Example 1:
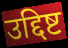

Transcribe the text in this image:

उद्दिष्ट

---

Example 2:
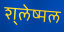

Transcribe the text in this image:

श्लेष्मल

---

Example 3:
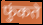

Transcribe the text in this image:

फुंकते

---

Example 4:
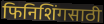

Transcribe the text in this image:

फिनिशिंगसाठी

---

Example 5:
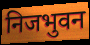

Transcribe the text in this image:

निजभुवन